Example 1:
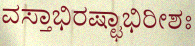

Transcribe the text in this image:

ವಸ್ತಾಭಿರಷ್ಟಾಭಿರೀಶಃ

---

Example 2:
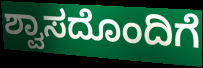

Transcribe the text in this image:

ಶ್ವಾಸದೊಂದಿಗೆ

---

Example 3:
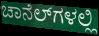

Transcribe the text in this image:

ಚಾನೆಲ್‍ಗಳಲ್ಲಿ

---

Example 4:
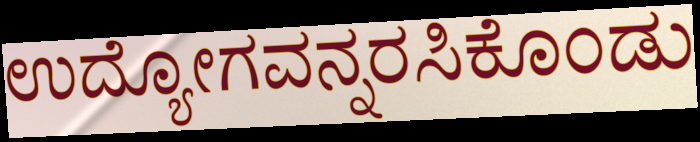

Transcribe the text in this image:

ಉದ್ಯೋಗವನ್ನರಸಿಕೊಂಡು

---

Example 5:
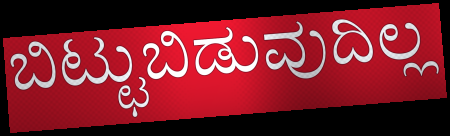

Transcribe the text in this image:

ಬಿಟ್ಟುಬಿಡುವುದಿಲ್ಲ